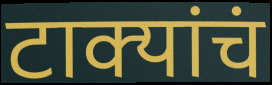
टाक्यांचं